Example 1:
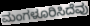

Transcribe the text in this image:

ಮಂಗಳೂರಿಸಿದೆವು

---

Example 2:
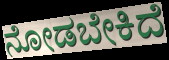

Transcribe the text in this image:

ನೋಡಬೇಕಿದೆ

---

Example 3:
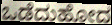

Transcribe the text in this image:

ಒಡೆದುಹೋದ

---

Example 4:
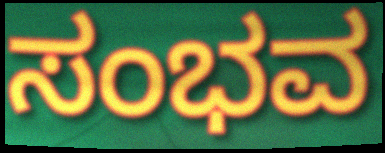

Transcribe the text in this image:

ಸಂಭವ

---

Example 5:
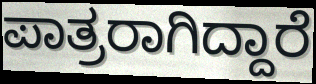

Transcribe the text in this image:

ಪಾತ್ರರಾಗಿದ್ದಾರೆ